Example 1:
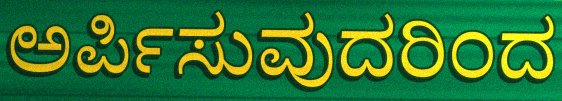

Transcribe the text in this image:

ಅರ್ಪಿಸುವುದರಿಂದ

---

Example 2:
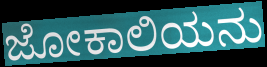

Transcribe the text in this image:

ಜೋಕಾಲಿಯನು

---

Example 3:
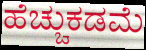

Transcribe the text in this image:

ಹೆಚ್ಚುಕಡಮೆ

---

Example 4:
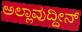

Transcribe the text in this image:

ಅಲ್ಲಾವುದ್ದೀನ್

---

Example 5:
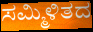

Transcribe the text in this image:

ಸಮ್ಮಿಳಿತದ